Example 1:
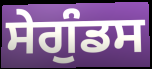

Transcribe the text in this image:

ਸੇਗੁੰਡਸ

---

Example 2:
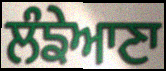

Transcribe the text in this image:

ਲੰਙੇਆਣਾ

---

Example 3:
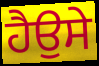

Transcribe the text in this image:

ਹੈਉਸੇ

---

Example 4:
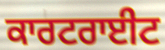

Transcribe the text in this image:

ਕਾਰਟਰਾਈਟ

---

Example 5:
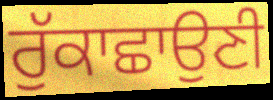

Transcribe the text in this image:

ਰੁੱਕਾਛਾਉਣੀ